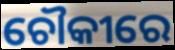
ଚୌକୀରେ